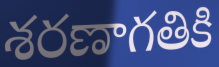
శరణాగతికి